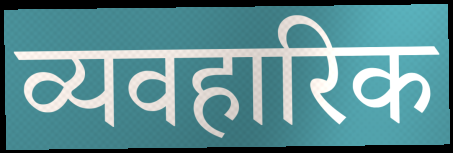
व्यवहारिक